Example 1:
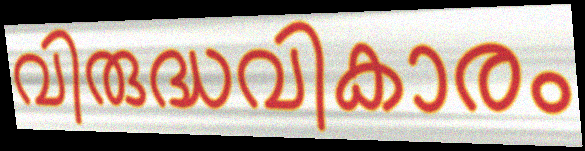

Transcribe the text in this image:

വിരുദ്ധവികാരം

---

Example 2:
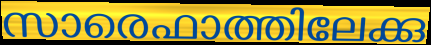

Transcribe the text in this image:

സാരെഫാത്തിലേക്കു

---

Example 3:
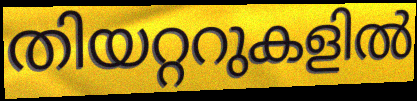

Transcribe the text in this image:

തിയറ്ററുകളിൽ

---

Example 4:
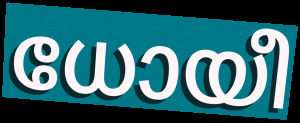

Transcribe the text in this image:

ധോയീ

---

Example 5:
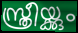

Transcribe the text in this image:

സ്ത്രീയ്ക്കും